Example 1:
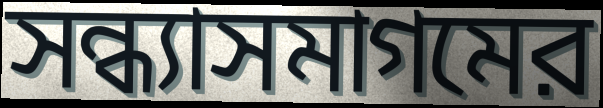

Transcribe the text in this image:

সন্ধ্যাসমাগমের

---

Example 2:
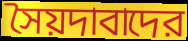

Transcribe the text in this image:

সৈয়দাবাদের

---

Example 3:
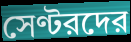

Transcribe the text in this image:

সেণ্টরদের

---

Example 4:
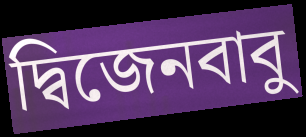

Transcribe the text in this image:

দ্বিজেনবাবু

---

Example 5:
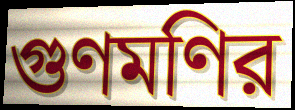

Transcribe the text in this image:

গুণমণির